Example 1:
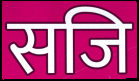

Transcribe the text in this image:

सजि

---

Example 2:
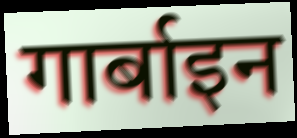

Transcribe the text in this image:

गार्बाइन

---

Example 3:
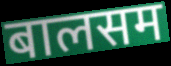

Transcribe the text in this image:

बालसम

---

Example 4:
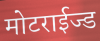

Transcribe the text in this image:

मोटराईज्ड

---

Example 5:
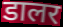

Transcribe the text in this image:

डालर